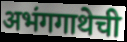
अभंगगाथेची